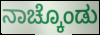
ನಾಚ್ಕೊಂಡು